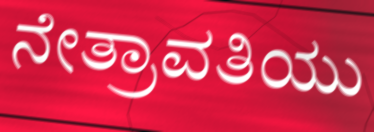
ನೇತ್ರಾವತಿಯು